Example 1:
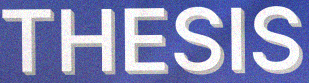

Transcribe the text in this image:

THESIS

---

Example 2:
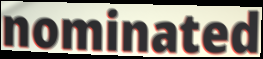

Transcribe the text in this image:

nominated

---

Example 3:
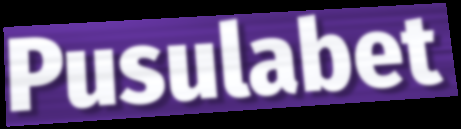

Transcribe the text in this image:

Pusulabet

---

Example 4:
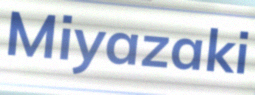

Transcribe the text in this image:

Miyazaki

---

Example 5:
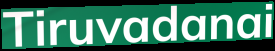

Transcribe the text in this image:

Tiruvadanai